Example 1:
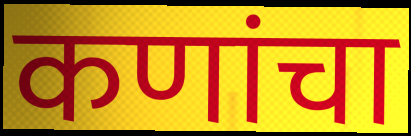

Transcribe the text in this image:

कणांचा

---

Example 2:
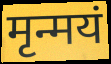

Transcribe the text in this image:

मृन्मयं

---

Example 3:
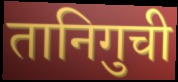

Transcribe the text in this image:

तानिगुची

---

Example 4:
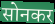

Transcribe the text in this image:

सोनकर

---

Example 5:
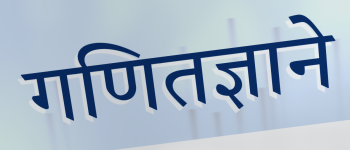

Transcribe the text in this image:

गणितज्ञाने